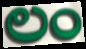
లం